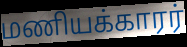
மணியக்காரர்